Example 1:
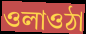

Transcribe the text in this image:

ওলাওঠা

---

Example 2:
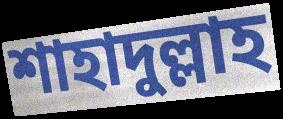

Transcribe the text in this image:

শাহাদুল্লাহ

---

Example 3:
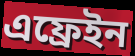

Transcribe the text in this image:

এফ্রেইন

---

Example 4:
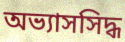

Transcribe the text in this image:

অভ্যাসসিদ্ধ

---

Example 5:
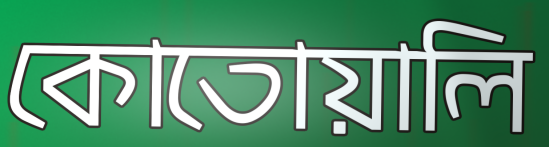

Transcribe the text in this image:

কোতোয়ালি